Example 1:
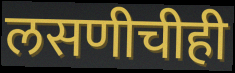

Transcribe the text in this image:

लसणीचीही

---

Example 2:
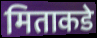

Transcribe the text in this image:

मिताकडे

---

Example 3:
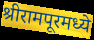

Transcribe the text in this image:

श्रीरामपूरमध्ये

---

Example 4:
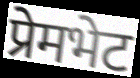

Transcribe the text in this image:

प्रेमभेट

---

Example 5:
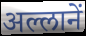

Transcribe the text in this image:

अल्लानें